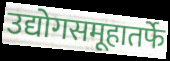
उद्योगसमूहातर्फे